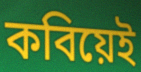
কবিয়েই